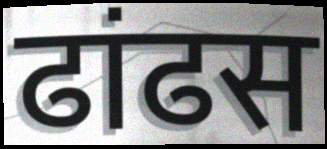
ढांढस